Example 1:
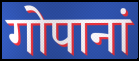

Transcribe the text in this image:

गोपानां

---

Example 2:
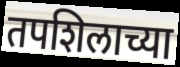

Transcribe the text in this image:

तपशिलाच्या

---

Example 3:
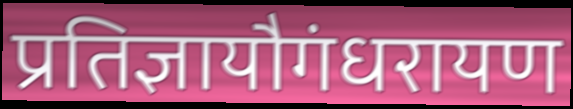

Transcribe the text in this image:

प्रतिज्ञायौगंधरायण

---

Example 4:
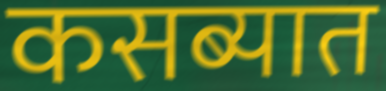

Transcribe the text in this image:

कसब्यात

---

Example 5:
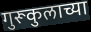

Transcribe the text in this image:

गुरूकुलाच्या